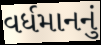
વર્ધમાનનું